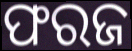
ଫରଜ